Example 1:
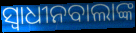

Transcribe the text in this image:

ସ୍ୱାଧୀନବାଲାଙ୍କ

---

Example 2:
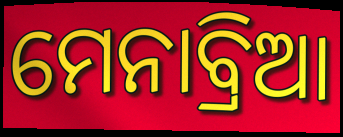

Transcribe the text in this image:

ମେନାବ୍ରିଆ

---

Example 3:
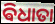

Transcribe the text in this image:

ଵିଧାତା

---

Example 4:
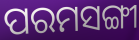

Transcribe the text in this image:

ପରମସଙ୍ଗୀ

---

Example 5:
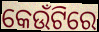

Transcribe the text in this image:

କେଉଁଟିରେ